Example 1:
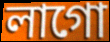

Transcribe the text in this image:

লাগো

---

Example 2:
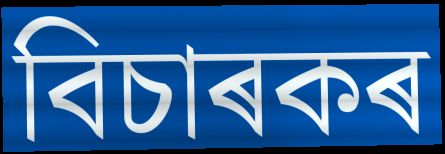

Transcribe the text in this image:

বিচাৰকৰ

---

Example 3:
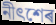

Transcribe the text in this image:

নীৎশেৰ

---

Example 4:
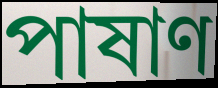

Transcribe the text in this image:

পাষাণ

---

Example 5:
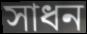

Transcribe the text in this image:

সাধন